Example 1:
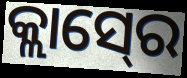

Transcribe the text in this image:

କ୍ଲାସ୍‍ରେ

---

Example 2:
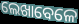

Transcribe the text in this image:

ଲେଖାବେଳେ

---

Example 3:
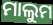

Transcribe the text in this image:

ମାଲୁମ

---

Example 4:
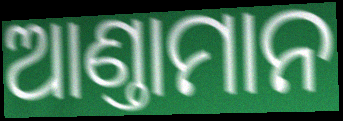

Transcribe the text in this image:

ଆଣ୍ତାମାନ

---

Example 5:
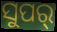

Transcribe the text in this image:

ସୁପର୍